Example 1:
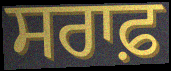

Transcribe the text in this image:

ਸਰਾਫ਼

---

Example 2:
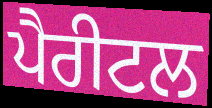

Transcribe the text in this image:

ਪੈਰੀਟਲ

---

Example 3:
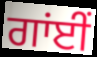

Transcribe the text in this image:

ਗਾਂਈਂ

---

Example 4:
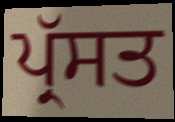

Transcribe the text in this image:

ਪ੍ਰੱਸਤ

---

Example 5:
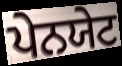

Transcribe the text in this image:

ਪੇਨਯੇਟ